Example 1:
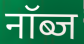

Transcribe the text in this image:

नॉब्ज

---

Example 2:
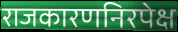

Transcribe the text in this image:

राजकारणनिरपेक्ष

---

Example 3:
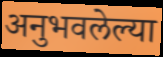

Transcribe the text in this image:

अनुभवलेल्या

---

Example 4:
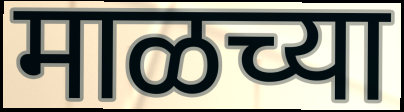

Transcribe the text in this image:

माळच्या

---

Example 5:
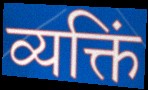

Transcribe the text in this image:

व्यक्तिं